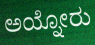
ಅಯ್ನೋರು